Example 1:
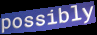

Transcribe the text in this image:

possibly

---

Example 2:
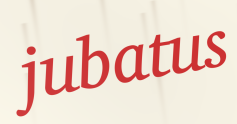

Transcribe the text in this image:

jubatus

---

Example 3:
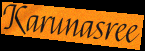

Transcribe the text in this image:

Karunasree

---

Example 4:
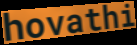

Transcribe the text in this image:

hovathi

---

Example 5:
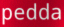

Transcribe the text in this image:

pedda